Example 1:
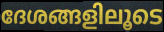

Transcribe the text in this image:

ദേശങ്ങളിലൂടെ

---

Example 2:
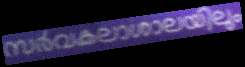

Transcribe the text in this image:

സർവകലാശാലയിലും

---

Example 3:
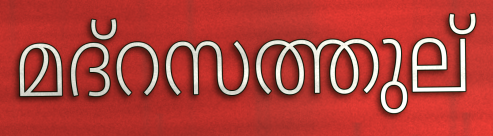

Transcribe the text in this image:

മദ്റസത്തുല്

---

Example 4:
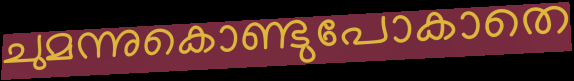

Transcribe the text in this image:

ചുമന്നുകൊണ്ടുപോകാതെ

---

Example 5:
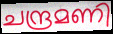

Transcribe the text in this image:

ചന്ദ്രമണി